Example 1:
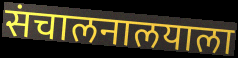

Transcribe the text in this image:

संचालनालयाला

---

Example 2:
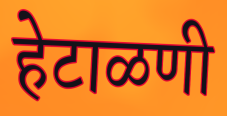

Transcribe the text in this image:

हेटाळणी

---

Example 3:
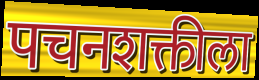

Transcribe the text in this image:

पचनशक्तीला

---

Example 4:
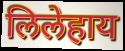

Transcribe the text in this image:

लिलेहाय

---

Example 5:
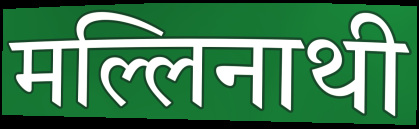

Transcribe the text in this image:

मल्लिनाथी